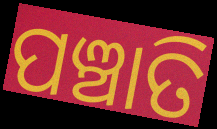
ପଞ୍ଚାତି